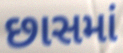
છાસમાં